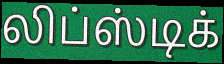
லிப்ஸ்டிக்